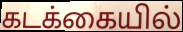
கடக்கையில்